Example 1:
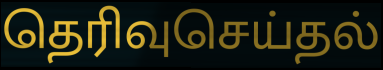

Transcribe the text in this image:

தெரிவுசெய்தல்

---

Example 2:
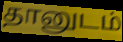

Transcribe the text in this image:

தானுடம்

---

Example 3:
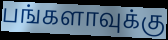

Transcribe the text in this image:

பங்களாவுக்கு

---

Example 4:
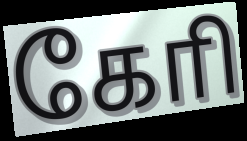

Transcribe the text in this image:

கேரி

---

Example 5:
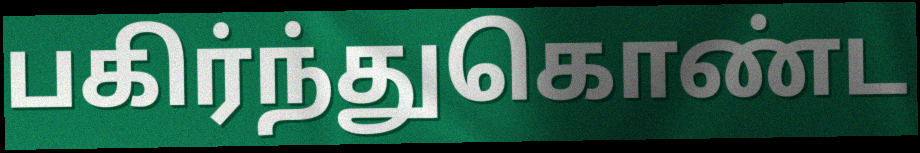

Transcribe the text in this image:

பகிர்ந்துகொண்ட